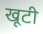
खूटी